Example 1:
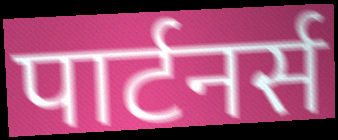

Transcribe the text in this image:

पार्टनर्स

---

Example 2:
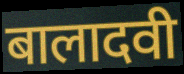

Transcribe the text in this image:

बालादवी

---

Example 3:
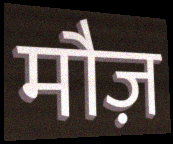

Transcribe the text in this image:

मौज़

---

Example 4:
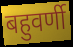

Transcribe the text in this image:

बहुवर्णी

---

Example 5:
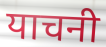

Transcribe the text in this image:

याचनी